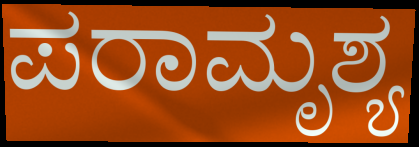
ಪರಾಮೃಶ್ಯ